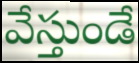
వేస్తుండే